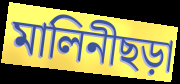
মালিনীছড়া